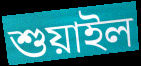
শুয়াইল